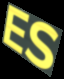
ES